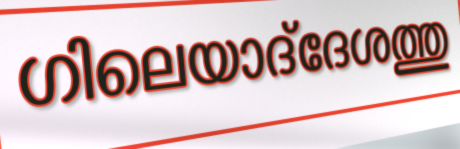
ഗിലെയാദ്‌ദേശത്തു